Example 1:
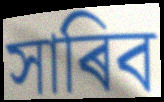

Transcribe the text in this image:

সাৰিব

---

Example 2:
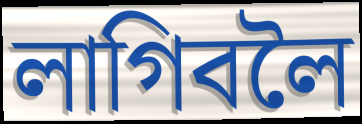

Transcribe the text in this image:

লাগিবলৈ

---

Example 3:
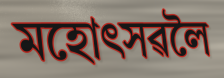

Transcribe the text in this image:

মহোৎসৱলৈ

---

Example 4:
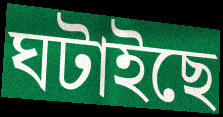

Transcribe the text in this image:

ঘটাইছে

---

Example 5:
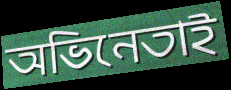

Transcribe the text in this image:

অভিনেতাই